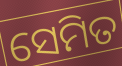
ସେମିତ